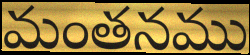
మంతనము